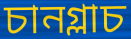
চানগ্লাচ